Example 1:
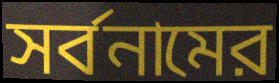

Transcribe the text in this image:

সর্বনামের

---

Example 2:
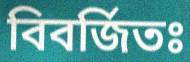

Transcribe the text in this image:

বিবর্জিতঃ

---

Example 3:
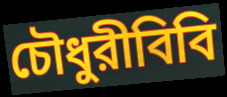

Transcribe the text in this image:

চৌধুরীবিবি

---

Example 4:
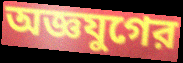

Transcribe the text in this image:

অজ্ঞযুগের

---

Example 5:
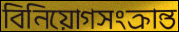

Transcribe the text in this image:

বিনিয়োগসংক্রান্ত